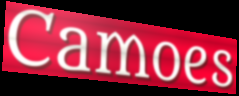
Camoes